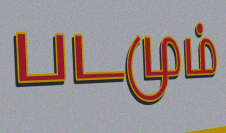
படமும்